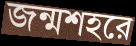
জন্মশহরে